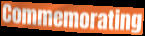
Commemorating